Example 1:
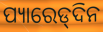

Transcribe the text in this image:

ପ୍ୟାରେଡ୍‌ଦିନ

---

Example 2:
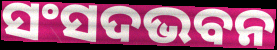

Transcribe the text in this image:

ସଂସଦଭବନ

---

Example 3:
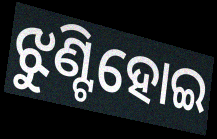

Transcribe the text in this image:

ଝୁଣ୍ଟିହୋଇ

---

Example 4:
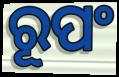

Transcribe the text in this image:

ରୂପଂ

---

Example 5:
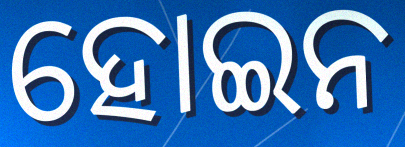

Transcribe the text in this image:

ହୋଇନ